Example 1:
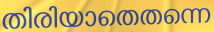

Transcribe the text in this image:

തിരിയാതെതന്നെ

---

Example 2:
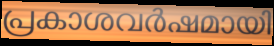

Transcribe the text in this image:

പ്രകാശവർഷമായി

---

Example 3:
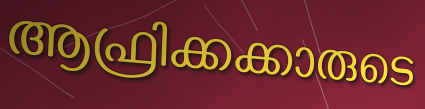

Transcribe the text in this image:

ആഫ്രിക്കക്കാരുടെ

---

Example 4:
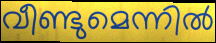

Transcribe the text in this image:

വീണ്ടുമെന്നിൽ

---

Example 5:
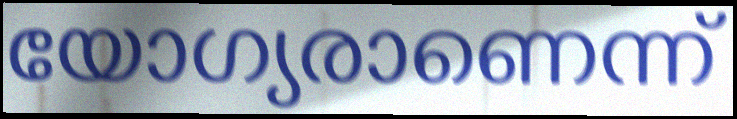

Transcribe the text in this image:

യോഗ്യരാണെന്ന്